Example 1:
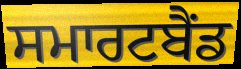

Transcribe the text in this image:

ਸਮਾਰਟਬੈਂਡ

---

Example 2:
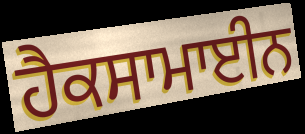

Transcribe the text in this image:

ਹੈਕਸਾਮਾਈਨ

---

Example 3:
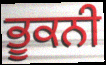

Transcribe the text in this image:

ਭੂਕਨੀ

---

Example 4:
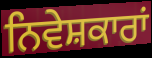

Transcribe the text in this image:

ਨਿਵੇਸ਼ਕਾਰਾਂ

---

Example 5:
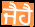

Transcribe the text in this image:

ਜੈਹੈ